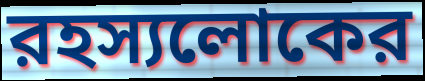
রহস্যলোকের